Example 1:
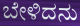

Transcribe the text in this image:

ಬೇಳಿದನು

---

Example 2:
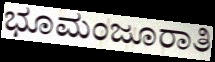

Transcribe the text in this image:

ಭೂಮಂಜೂರಾತಿ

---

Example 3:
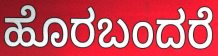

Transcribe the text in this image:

ಹೊರಬಂದರೆ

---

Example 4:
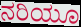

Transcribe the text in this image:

ನರಿಯೂ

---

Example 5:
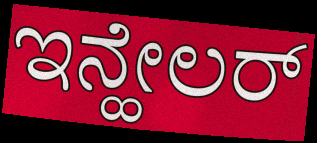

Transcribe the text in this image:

ಇನ್ಹೇಲರ್